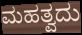
ಮಹತ್ವದು